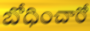
బోధించారో